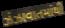
ઝંઝાવાતમાંથી